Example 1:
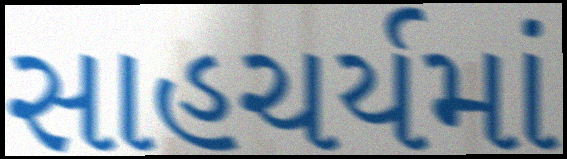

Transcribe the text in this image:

સાહચર્યમાં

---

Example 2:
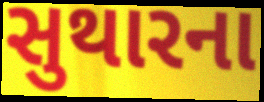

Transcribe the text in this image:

સુથારના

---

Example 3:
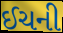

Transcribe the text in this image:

ઈચની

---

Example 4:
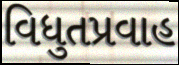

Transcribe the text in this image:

વિધુતપ્રવાહ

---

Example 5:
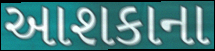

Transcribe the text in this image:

આશકાના